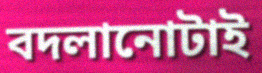
বদলানোটাই